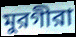
মুরগীরা